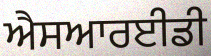
ਐਸਆਰਈਡੀ